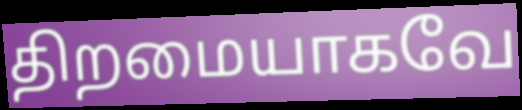
திறமையாகவே